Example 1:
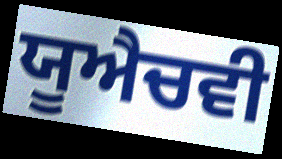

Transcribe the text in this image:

ਯੂਐਚਵੀ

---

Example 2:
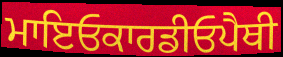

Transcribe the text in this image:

ਮਾਇਓਕਾਰਡੀਓਪੈਥੀ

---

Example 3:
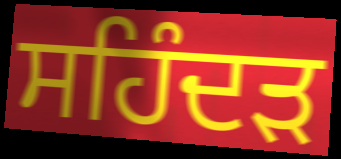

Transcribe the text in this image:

ਸਹਿੰਦੜ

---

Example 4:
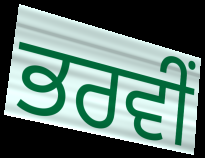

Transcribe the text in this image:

ਭਰਵੀਂ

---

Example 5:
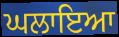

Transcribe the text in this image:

ਘਲਾਇਆ